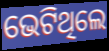
ଭେଟିଥିଲେ